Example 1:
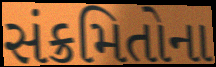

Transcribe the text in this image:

સંક્રમિતોના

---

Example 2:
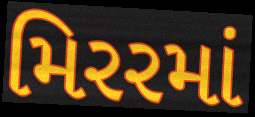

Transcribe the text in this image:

મિરરમાં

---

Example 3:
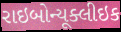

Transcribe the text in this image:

રાઇબોન્યૂક્લીઇક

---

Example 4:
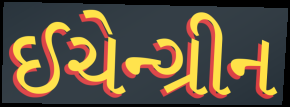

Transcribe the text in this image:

ઈચેન્ગ્રીન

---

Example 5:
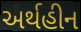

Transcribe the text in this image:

અર્થહીન